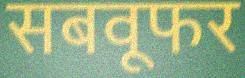
सबवूफर